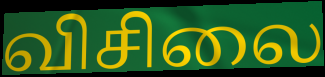
விசிலை